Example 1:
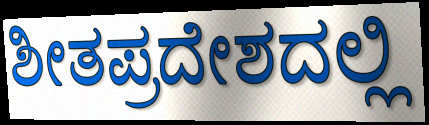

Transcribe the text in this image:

ಶೀತಪ್ರದೇಶದಲ್ಲಿ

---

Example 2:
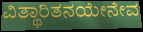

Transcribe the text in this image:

ವಿತ್ಥಾರಿತನಯೇನೇವ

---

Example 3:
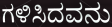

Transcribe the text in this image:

ಗಳಿಸಿದವನು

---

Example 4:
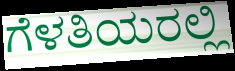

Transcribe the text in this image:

ಗೆಳತಿಯರಲ್ಲಿ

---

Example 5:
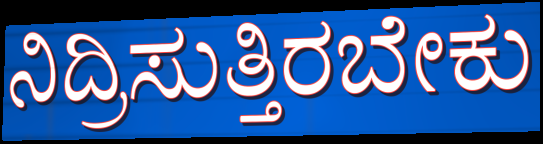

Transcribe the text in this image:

ನಿದ್ರಿಸುತ್ತಿರಬೇಕು